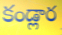
కండ్లార